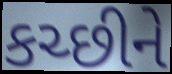
કચ્છીને